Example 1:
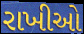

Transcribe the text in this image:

રાખીઓ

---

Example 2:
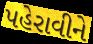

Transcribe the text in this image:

પહેરાવીને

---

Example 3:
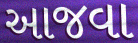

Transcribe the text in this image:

આજવા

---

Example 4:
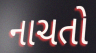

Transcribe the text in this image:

નાચતો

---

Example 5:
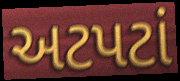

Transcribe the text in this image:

અટપટાં